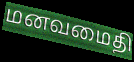
மனவமைதி